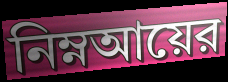
নিম্নআয়ের